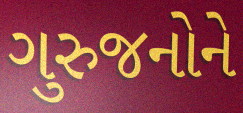
ગુરુજનોને